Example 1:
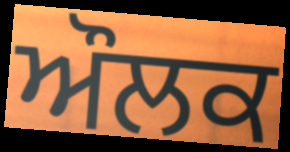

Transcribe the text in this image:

ਔਲਕ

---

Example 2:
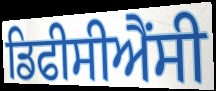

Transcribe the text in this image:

ਡਿਫੀਸੀਐਂਸੀ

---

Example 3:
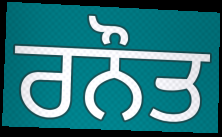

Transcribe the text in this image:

ਰਨੌਤ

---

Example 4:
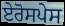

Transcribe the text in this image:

ਏਰੋਸਪੇਸ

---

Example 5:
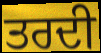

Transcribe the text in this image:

ਤਰਦੀ